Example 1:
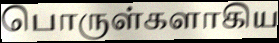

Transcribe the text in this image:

பொருள்களாகிய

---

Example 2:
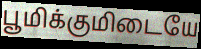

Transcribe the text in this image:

பூமிக்குமிடையே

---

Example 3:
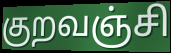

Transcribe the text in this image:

குறவஞ்சி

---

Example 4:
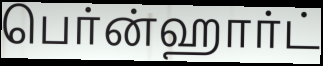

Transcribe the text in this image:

பெர்ன்ஹார்ட்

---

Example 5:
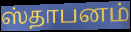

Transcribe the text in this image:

ஸ்தாபனம்